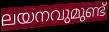
ലയനവുമുണ്ട്